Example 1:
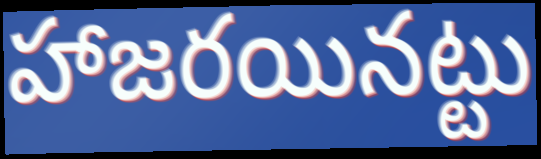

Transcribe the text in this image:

హాజరయినట్టు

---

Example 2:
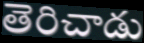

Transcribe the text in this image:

తెరిచాడు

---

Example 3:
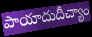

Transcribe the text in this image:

పాయాదుదీచ్యాం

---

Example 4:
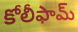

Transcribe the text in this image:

కోలీఫామ్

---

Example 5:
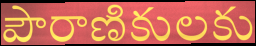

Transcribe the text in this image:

పౌరాణికులకు